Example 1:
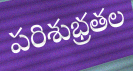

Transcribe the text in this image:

పరిశుభ్రతల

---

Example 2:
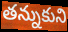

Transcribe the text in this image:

తన్నుకుని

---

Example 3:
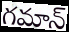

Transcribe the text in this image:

గమాన్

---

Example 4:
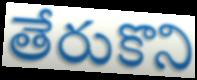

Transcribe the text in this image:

తేరుకొని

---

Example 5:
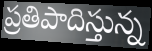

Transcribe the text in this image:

ప్రతిపాదిస్తున్న